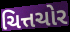
ચિત્તચોર